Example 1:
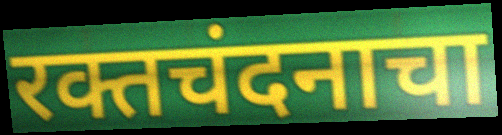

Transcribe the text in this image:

रक्तचंदनाचा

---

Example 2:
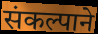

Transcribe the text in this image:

संकल्पाने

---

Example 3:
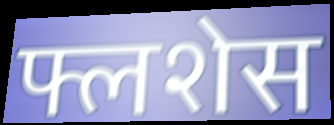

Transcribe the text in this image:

फ्लशेस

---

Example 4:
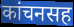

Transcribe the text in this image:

कांचनसह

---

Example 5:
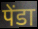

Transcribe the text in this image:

पेंडा